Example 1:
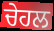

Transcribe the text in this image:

ਚੇਹਲ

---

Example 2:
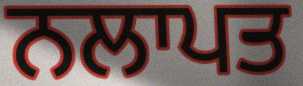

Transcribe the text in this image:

ਨਲਾਪਤ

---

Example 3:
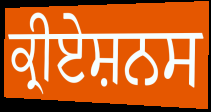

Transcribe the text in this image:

ਕ੍ਰੀਏਸ਼ਨਸ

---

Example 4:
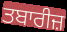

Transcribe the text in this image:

ਤਬਾਰੀਜ਼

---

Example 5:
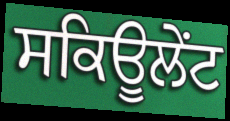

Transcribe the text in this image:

ਸਕਿਊਲੇਂਟ